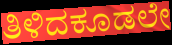
ತಿಳಿದಕೂಡಲೇ